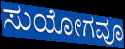
ಸುಯೋಗವೂ